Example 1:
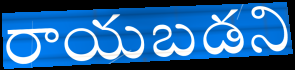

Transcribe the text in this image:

రాయబడని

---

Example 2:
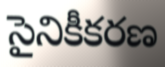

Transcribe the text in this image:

సైనికీకరణ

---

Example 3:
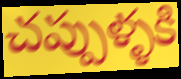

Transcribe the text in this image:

చప్పుళ్ళకి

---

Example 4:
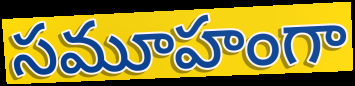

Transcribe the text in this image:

సమూహంగా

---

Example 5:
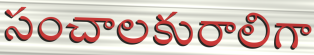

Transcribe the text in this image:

సంచాలకురాలిగా